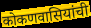
कोकणवासियांची